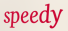
speedy